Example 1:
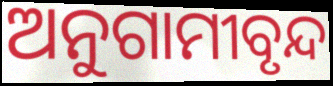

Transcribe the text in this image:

ଅନୁଗାମୀବୃନ୍ଦ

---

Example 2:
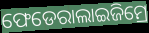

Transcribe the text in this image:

ଫେଡେରାଲାଇଜିମ୍ରେ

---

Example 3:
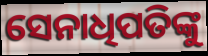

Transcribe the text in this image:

ସେନାଧିପତିଙ୍କୁ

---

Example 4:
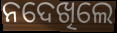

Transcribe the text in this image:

ନଦେଖିଲେ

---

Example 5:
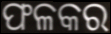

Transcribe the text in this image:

ଫଳକର